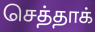
செத்தாக்